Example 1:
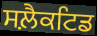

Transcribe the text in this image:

ਸਲ਼ੈਕਟਿਡ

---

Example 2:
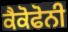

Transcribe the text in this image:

ਕੈਕੋਫੋਨੀ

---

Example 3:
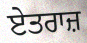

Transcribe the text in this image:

ਏਤਰਾਜ਼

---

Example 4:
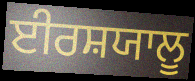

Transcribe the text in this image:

ਈਰਸ਼ਯਾਲੂ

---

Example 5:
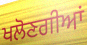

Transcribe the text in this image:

ਖਲੋਣਗੀਆਂ